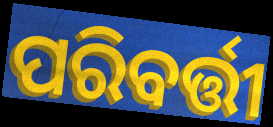
ପରିବର୍ତ୍ତୀ